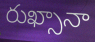
రుఖ్సానా